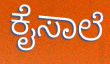
ಕೈಸಾಲೆ